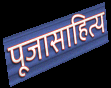
पूजासाहित्य